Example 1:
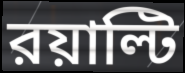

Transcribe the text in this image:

রয়াল্টি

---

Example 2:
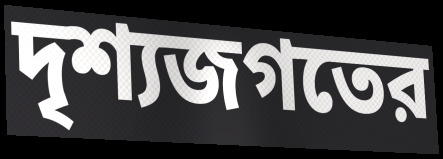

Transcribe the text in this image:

দৃশ্যজগতের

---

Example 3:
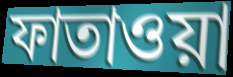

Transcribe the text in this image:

ফাতাওয়া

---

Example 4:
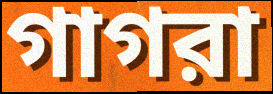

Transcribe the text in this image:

গাগরা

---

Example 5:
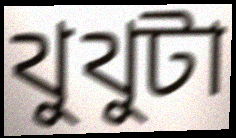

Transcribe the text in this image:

থুথুটা